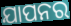
ଯାପନର